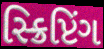
સ્ક્રિપ્ટિંગ